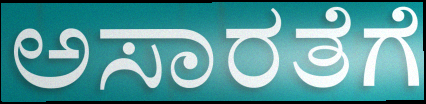
ಅಸಾರತೆಗೆ